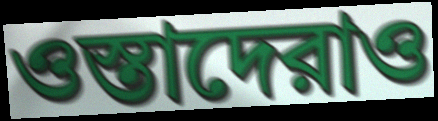
ওস্তাদেরাও